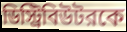
ডিস্ট্রিবিউটরকে